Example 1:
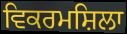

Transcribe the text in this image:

ਵਿਕਰਮਸ਼ਿਲਾ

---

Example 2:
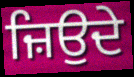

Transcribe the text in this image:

ਜ਼ਿਉਦੇ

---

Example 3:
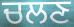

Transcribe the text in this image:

ਚਲਣ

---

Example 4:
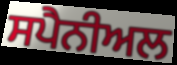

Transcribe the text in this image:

ਸਪੈਨੀਅਲ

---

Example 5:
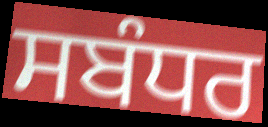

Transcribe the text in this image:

ਸਬੰਧਰ